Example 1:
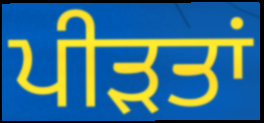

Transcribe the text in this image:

ਪੀਡ਼ਤਾਂ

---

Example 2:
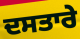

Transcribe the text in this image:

ਦਸਤਾਰੇ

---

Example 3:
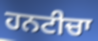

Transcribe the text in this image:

ਹਨਟੀਚਾ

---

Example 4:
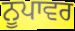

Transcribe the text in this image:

ਨੂਪਾਵਰ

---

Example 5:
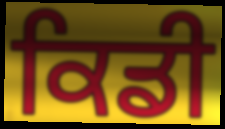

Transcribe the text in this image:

ਕਿਡੀ